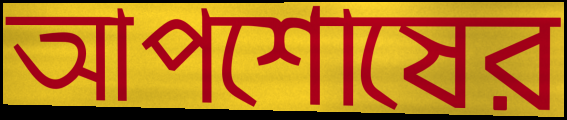
আপশোষের